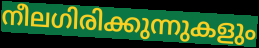
നീലഗിരിക്കുന്നുകളും